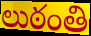
లుఠంతి